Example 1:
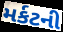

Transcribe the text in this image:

મર્કટની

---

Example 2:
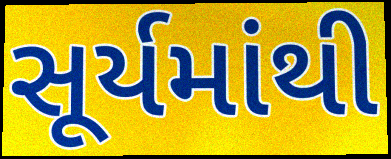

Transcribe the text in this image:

સૂર્યમાંથી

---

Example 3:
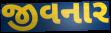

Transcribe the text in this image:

જીવનાર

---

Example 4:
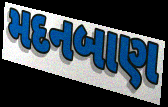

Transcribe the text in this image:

મદનબાણ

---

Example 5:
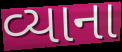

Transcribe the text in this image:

વ્યાના